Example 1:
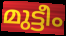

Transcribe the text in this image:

മുട്ടീം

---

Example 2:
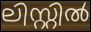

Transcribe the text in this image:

ലിസ്റ്റിൽ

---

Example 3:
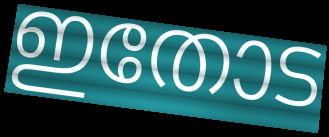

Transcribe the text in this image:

ഇതോട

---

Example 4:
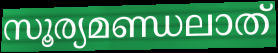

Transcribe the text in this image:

സൂര്യമണ്ഡലാത്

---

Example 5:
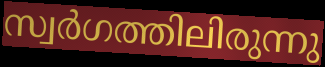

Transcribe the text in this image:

സ്വർഗത്തിലിരുന്നു